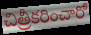
చిత్రీకరించారో